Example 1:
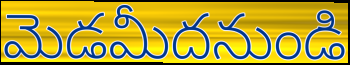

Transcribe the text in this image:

మెడమీదనుండి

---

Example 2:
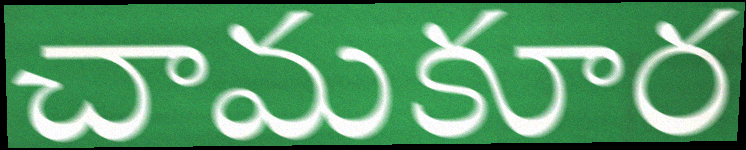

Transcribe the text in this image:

చామకూర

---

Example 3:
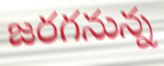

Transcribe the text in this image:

జరగనున్న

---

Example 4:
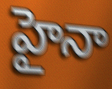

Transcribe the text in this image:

హైనా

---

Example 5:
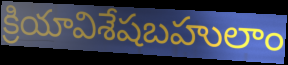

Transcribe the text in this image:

క్రియావిశేషబహులాం